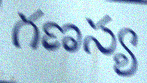
గణస్య